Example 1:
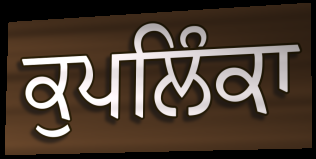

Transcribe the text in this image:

ਕੁਪਲਿੰਕਾ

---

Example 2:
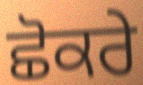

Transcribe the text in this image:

ਛੋਕਰੇ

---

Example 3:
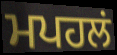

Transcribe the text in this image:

ਮਪਹਲਂ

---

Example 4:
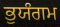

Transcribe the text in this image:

ਭੁਯੰਗਮ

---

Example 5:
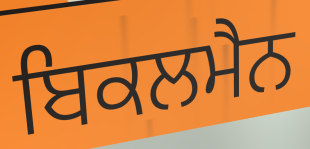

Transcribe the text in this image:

ਬਿਕਲਮੈਨ